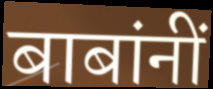
बाबांनीं